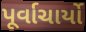
પૂર્વાચાર્યો